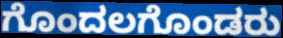
ಗೊಂದಲಗೊಂಡರು